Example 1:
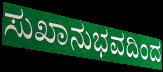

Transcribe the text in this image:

ಸುಖಾನುಭವದಿಂದ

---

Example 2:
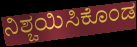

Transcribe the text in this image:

ನಿಶ್ಚಯಿಸಿಕೊಂಡ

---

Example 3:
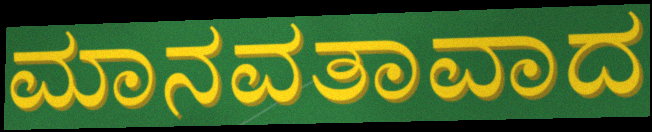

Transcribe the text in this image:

ಮಾನವತಾವಾದ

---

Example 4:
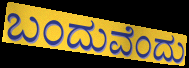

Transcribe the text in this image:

ಬಂದುವೆಂದು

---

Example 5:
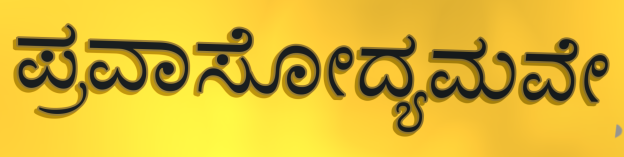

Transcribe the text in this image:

ಪ್ರವಾಸೋದ್ಯಮವೇ